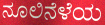
ನೂಲಿನೆಳೆಯ